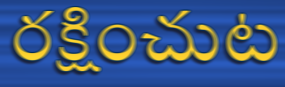
రక్షించుట